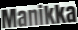
Manikka